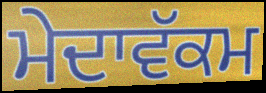
ਮੇਦਾਵੱਕਮ